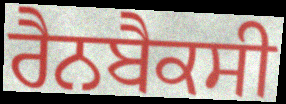
ਰੈਨਬੈਕਸੀ